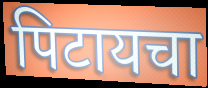
पिटायचा